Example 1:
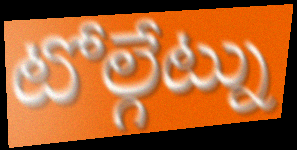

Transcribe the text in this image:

టోల్గేట్ను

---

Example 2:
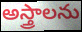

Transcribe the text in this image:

అస్త్రాలను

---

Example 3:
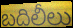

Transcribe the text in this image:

బదిలీలు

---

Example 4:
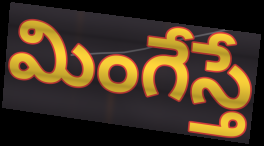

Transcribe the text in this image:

మింగేస్తే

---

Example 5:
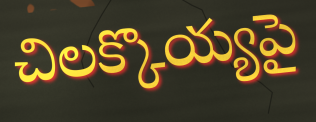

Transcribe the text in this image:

చిలక్కొయ్యపై